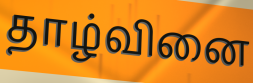
தாழ்வினை